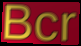
Bcr